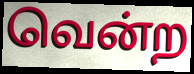
வென்ற